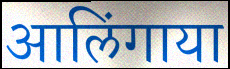
आलिंगाया